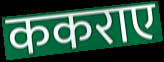
ककराए